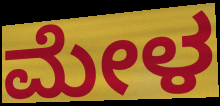
ಮೇಳ